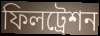
ফিলট্রেশন